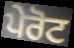
ਪੇਰੋਟ